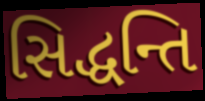
સિદ્ધન્તિ